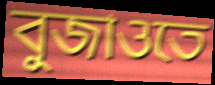
বুজাওতে